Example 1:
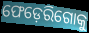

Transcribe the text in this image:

ଫେଡ଼େରିଗୋକୁ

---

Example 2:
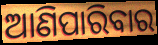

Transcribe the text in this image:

ଆଣିପାରିବାର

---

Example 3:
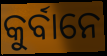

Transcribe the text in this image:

କୁର୍ବାନେ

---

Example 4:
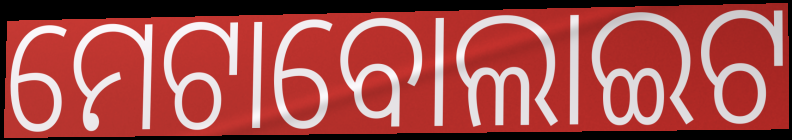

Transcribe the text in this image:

ମେଟାବୋଲାଇଟ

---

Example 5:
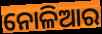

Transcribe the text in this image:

ନୋଳିଆର